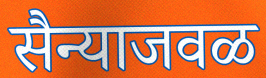
सैन्याजवळ